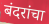
बंदरांचा